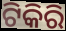
ଟିକିରି